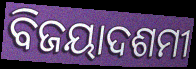
ବିଜୟାଦଶମୀ